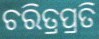
ଚରିତ୍ରପ୍ରତି